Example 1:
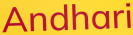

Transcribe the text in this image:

Andhari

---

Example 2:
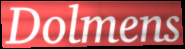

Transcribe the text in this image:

Dolmens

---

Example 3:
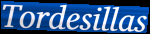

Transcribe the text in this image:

Tordesillas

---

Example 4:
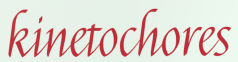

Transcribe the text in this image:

kinetochores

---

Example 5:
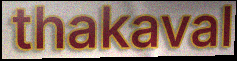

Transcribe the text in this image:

thakaval